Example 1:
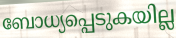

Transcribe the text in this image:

ബോധ്യപ്പെടുകയില്ല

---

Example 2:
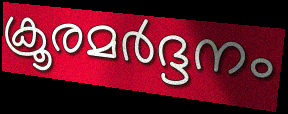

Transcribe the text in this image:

ക്രൂരമർദ്ദനം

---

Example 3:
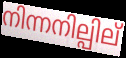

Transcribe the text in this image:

നിന്നനില്പില്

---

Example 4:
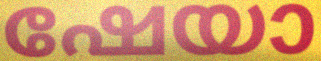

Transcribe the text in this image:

ഷേയാ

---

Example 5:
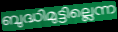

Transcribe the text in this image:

ബുദ്ധിമുട്ടില്ലെന്ന